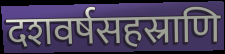
दशवर्षसहस्राणि